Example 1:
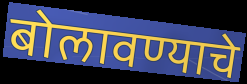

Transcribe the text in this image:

बोलावण्याचे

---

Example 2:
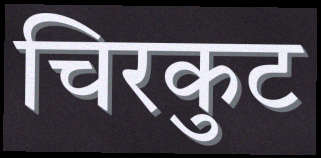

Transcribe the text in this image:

चिरकुट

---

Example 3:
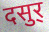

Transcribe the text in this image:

दसुर्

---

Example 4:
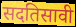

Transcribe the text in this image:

सदतिसावी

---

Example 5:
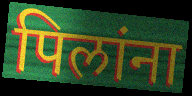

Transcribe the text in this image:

पिलांना